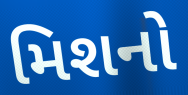
મિશનો